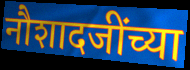
नौशादजींच्या